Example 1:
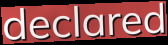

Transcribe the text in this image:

declared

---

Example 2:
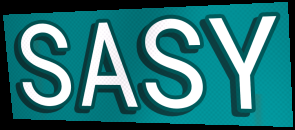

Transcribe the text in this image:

SASY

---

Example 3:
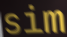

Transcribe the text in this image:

sim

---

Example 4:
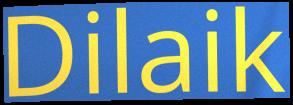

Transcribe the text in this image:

Dilaik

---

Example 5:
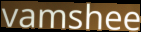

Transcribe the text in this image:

vamshee